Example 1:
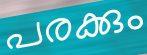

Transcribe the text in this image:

പരക്കും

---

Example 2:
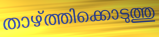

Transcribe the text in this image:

താഴ്ത്തിക്കൊടുത്തു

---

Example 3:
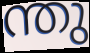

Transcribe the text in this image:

ന്തു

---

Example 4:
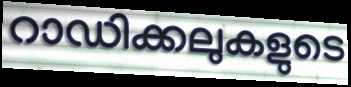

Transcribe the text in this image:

റാഡിക്കലുകളുടെ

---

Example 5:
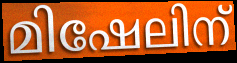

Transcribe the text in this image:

മിഷേലിന്